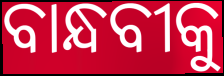
ବାନ୍ଧବୀକୁ